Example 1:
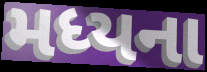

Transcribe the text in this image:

મધ્યના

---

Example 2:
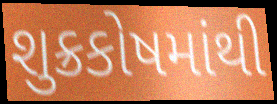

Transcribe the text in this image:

શુક્રકોષમાંથી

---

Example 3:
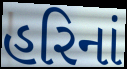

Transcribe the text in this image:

હરિનાં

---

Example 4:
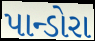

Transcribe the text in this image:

પાન્ડોરા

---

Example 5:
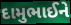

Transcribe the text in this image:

દામુભાઈને